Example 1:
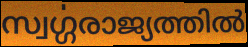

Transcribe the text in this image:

സ്വൎഗ്ഗരാജ്യത്തിൽ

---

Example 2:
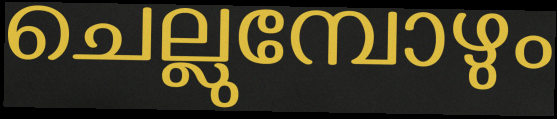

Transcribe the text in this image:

ചെല്ലുമ്പോഴും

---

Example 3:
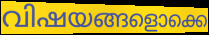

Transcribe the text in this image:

വിഷയങ്ങളൊക്കെ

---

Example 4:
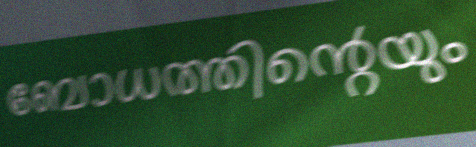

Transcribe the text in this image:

ബോധത്തിന്റെയും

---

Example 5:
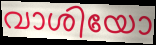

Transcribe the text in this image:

വാശിയോ